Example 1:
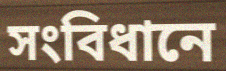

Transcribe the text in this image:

সংবিধানে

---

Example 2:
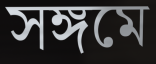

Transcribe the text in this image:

সঙ্গমে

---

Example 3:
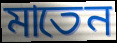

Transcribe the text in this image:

মাতেন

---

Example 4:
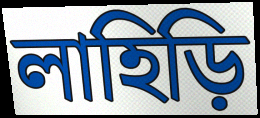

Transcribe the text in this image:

লাহিড়ি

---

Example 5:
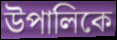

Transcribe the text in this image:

উপালিকে